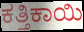
ಕತ್ತಿಕಾಯಿ